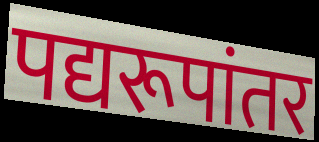
पद्यरूपांतर